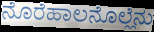
ನೊರೆಹಾಲನೊಲ್ಲೆನು